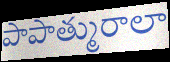
పాపాత్మురాలా